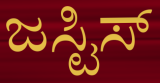
ಜಸ್ಟಿಸ್